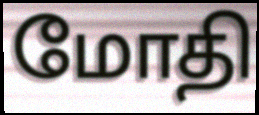
மோதி